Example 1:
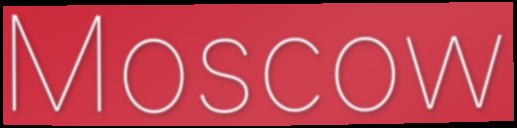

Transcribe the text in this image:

Moscow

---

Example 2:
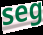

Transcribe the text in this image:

seg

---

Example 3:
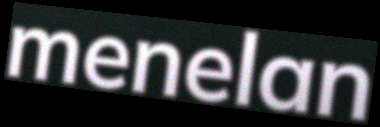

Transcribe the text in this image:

menelan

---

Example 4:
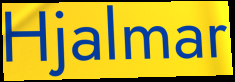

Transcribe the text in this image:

Hjalmar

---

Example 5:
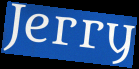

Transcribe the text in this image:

Jerry